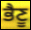
ਭੈਣੂ